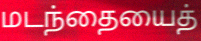
மடந்தையைத்